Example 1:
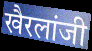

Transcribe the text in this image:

खैरलांजी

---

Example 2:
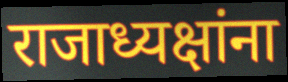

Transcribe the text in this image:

राजाध्यक्षांना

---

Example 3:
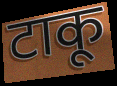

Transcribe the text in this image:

टाकू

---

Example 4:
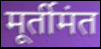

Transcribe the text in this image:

मूर्तीमंत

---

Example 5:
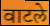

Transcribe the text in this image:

वाटले